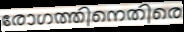
രോഗത്തിനെതിരെ